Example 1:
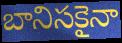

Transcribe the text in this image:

బానిసకైనా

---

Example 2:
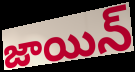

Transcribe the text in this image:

జాయిన్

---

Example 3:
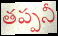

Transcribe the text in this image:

తప్పనీ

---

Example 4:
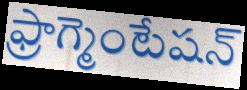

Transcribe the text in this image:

ఫ్రాగ్మెంటేషన్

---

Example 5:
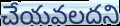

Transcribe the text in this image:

చేయవలదని